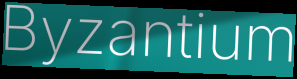
Byzantium